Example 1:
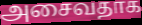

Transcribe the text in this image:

அசைவதாக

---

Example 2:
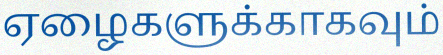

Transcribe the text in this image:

ஏழைகளுக்காகவும்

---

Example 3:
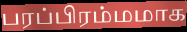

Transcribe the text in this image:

பரப்பிரம்மமாக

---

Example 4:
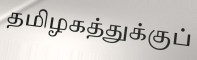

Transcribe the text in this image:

தமிழகத்துக்குப்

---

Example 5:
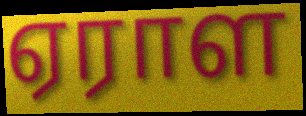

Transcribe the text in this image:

ஏராள